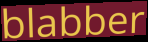
blabber